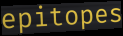
epitopes